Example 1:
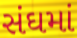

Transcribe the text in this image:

સંઘમાં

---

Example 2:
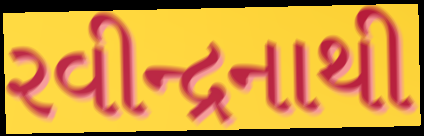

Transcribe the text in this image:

રવીન્દ્રનાથી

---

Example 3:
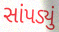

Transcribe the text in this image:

સાંપડ્યું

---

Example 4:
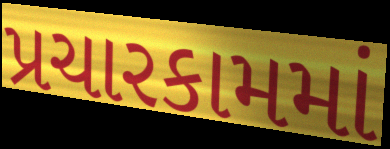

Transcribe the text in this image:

પ્રચારકામમાં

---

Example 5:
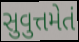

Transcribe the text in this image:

સુવુત્તમેતં